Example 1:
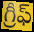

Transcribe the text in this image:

గ్రీఫ్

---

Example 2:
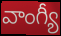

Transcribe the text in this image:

వాంగ్యీ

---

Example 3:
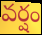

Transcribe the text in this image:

వర్షం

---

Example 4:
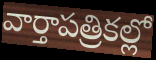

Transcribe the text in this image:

వార్తాపత్రికల్లో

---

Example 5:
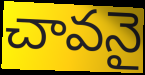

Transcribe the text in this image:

చావనై